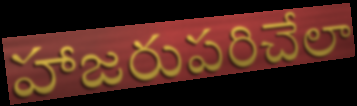
హాజరుపరిచేలా